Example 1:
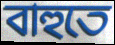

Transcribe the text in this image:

বাহুতে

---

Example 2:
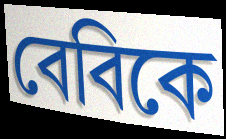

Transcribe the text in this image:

বেবিকে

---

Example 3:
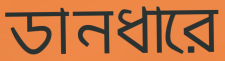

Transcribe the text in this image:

ডানধারে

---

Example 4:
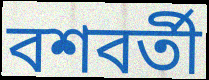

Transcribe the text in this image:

বশবর্তী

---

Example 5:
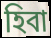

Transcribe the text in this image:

হিবা